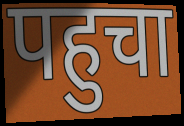
पहुचा